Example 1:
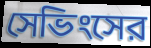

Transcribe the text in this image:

সেভিংসের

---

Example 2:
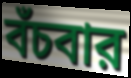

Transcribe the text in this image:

বঁচবার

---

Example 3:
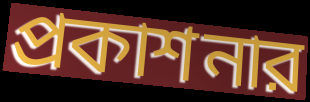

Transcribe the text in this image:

প্রকাশনার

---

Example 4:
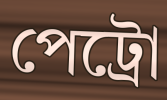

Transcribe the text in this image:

পেট্রো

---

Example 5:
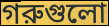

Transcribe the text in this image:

গরুগুলো